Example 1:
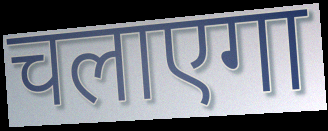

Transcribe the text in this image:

चलाएगा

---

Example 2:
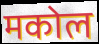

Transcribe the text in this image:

मकोल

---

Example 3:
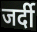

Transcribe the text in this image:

जर्दी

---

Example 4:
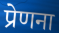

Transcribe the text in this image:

प्रेणना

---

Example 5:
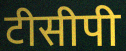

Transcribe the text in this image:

टीसीपी